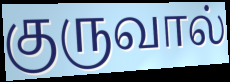
குருவால்